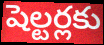
షెల్టర్లకు